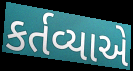
કર્તવ્યાએ